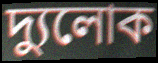
দ্যুলোক